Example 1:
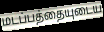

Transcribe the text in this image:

மடப்பத்தையுடைய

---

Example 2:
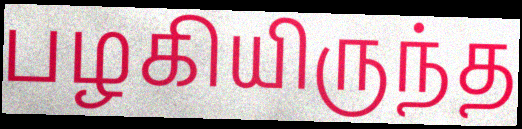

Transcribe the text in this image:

பழகியிருந்த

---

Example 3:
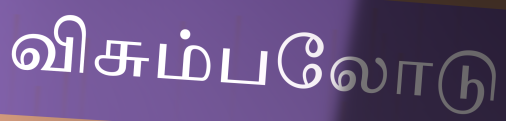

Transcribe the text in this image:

விசும்பலோடு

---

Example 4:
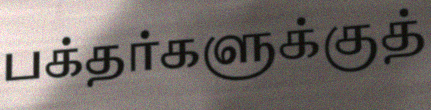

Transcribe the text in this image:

பக்தர்களுக்குத்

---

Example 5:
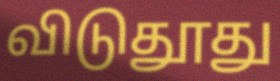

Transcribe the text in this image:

விடுதூது